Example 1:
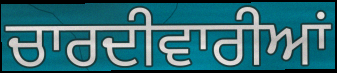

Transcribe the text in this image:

ਚਾਰਦੀਵਾਰੀਆਂ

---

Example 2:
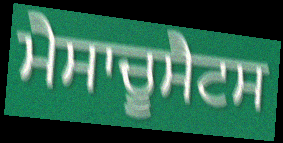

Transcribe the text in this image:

ਮੈਸਾਚੂਸੈਟਸ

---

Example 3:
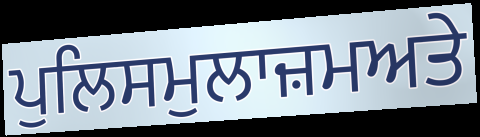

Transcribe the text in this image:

ਪੁਲਿਸਮੁਲਾਜ਼ਮਅਤੇ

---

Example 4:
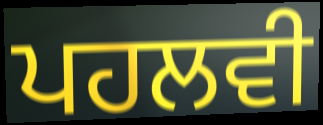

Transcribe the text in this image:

ਪਹਲਵੀ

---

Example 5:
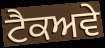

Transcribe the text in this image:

ਟੈਕਅਵੇ